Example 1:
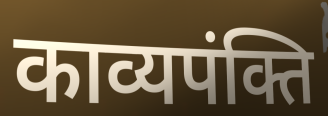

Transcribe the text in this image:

काव्यपंक्ति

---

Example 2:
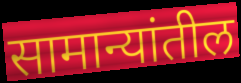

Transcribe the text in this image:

सामान्यांतील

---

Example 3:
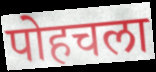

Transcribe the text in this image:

पोहचला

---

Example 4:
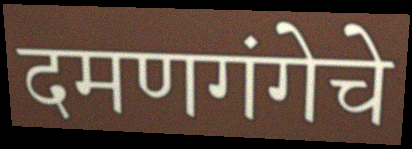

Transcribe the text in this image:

दमणगंगेचे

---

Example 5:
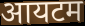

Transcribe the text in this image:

आयटम